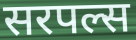
सरपल्स